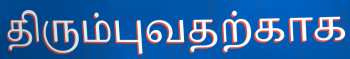
திரும்புவதற்காக